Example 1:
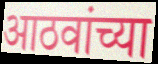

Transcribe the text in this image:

आठवांच्या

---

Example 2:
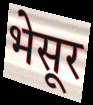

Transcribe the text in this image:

भेसूर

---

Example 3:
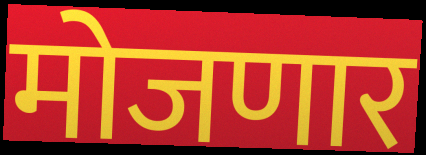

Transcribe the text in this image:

मोजणार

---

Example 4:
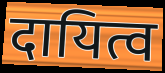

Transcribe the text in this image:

दायित्व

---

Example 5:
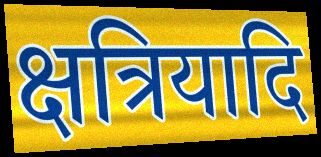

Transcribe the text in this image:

क्षत्रियादि